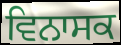
ਵਿਨਾਸਕ